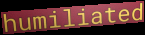
humiliated